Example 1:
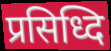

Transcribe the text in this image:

प्रसिध्दि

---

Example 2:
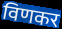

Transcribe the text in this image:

विणकर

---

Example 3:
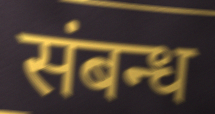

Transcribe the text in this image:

संबन्ध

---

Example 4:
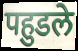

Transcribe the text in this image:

पहुडले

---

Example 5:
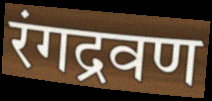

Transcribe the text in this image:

रंगद्रवण